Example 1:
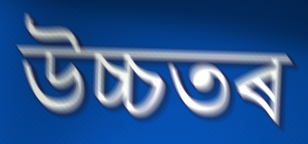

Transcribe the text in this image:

উচ্চতৰ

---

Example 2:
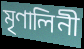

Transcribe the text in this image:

মৃণালিনী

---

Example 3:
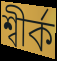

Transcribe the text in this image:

শ্বীৰ্ক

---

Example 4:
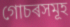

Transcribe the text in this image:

গোচৰসমূহ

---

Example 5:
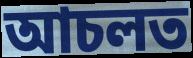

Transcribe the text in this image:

আচলত